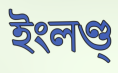
ইংলণ্ড্